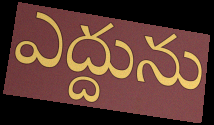
ఎద్దును